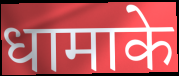
धामाके